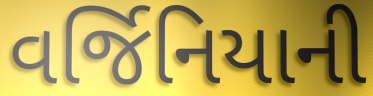
વર્જિનિયાની